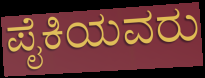
ಪೈಕಿಯವರು